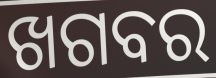
ଖଗବର